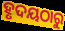
ହୃଦୟଠାରୁ